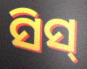
ସିସ୍